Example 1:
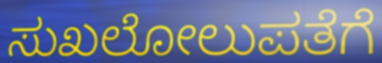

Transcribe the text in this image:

ಸುಖಲೋಲುಪತೆಗೆ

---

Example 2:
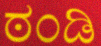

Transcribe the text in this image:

ಠಂಡಿ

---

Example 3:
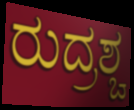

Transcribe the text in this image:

ರುದ್ರಶ್ಚ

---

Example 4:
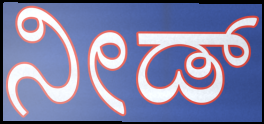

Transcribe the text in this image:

ನೀಡ್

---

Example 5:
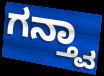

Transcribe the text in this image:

ಗನ್ತ್ವಾ